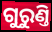
ଗୁରୁଣ୍ତି